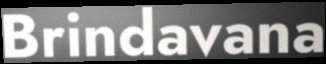
Brindavana